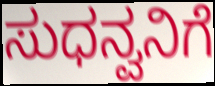
ಸುಧನ್ವನಿಗೆ